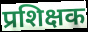
प्रशिक्षक